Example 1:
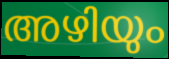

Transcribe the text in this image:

അഴിയും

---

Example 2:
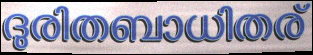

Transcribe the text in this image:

ദുരിതബാധിതര്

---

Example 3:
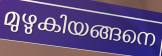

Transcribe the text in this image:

മുഴുകിയങ്ങനെ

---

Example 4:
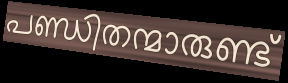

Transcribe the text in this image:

പണ്ഡിതന്മാരുണ്ട്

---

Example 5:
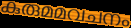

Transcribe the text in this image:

കുരുമമവചനം